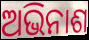
ଅଭିନାଶ